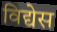
विद्येस